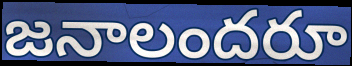
జనాలందరూ